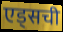
एड्सची